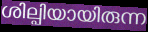
ശില്പിയായിരുന്ന